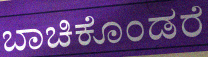
ಬಾಚಿಕೊಂಡರೆ